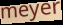
meyer